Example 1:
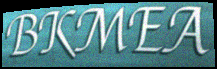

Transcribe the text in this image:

BKMEA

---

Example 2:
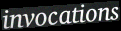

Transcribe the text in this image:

invocations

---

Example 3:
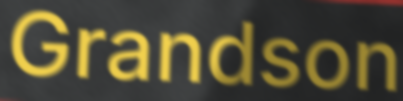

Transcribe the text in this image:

Grandson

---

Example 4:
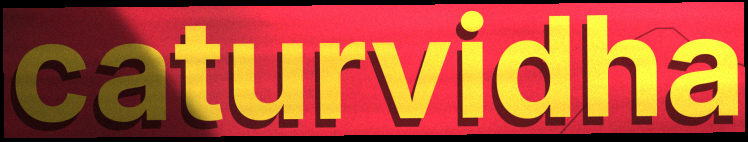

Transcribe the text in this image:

caturvidha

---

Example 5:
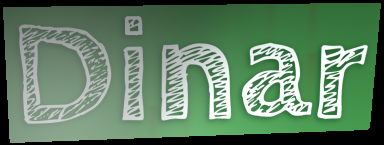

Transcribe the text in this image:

Dinar